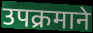
उपक्रमाने